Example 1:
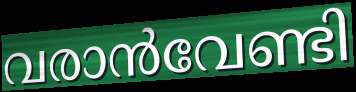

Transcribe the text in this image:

വരാൻവേണ്ടി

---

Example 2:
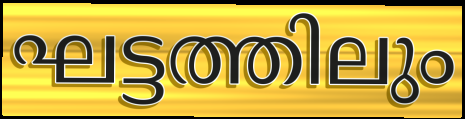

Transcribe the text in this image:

ഘട്ടത്തിലും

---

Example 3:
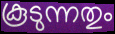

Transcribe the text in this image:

കൂടുന്നതും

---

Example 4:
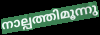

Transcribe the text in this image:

നാല്പത്തിമൂന്നു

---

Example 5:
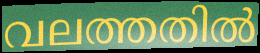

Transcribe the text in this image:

വലത്തതിൽ